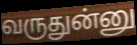
வருதுன்னு